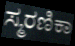
ಸ್ಮರಣಿಕಾ